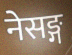
नेसङ्ग